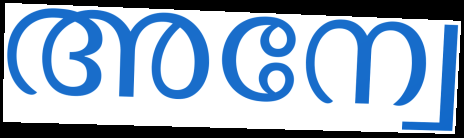
അന്വേ